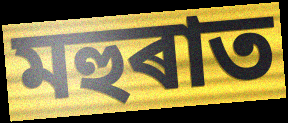
মহুৰাত